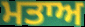
ਮਤਾਅ